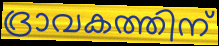
ദ്രാവകത്തിന്